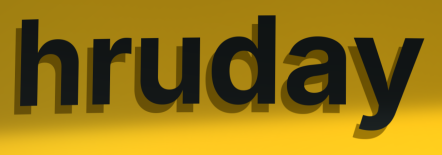
hruday